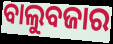
ବାଲୁବଜାର